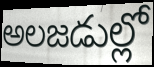
అలజడుల్లో